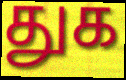
துக